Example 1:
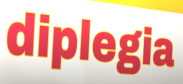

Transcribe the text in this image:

diplegia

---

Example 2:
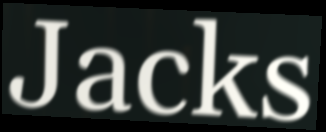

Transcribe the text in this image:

Jacks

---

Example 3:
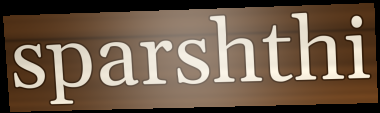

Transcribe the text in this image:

sparshthi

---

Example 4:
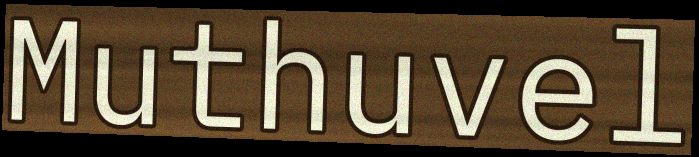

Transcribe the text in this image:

Muthuvel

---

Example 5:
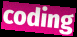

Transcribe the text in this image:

coding